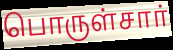
பொருள்சார்